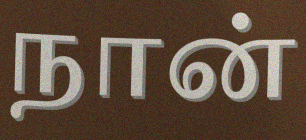
நான்